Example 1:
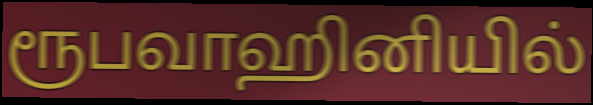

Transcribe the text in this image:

ரூபவாஹினியில்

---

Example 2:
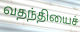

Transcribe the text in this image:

வதந்தியைச்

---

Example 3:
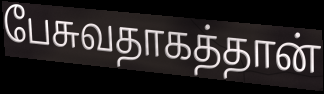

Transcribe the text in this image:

பேசுவதாகத்தான்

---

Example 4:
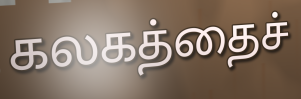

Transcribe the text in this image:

கலகத்தைச்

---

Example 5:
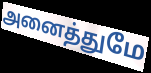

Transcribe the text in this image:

அனைத்துமே